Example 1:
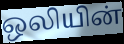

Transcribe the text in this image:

ஒலியின்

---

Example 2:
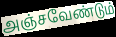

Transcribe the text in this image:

அஞ்சவேண்டும்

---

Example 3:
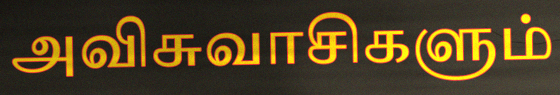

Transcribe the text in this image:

அவிசுவாசிகளும்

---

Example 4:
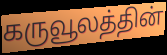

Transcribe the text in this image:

கருவூலத்தின்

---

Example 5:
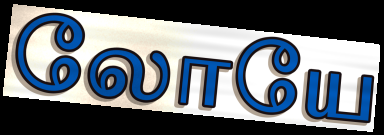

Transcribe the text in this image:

லோயே